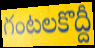
గంటలకొద్దీ